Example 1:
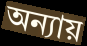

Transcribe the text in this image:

অন্যায়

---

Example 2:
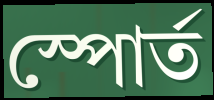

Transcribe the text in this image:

স্পোর্ত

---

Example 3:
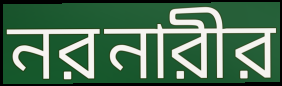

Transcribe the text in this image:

নরনারীর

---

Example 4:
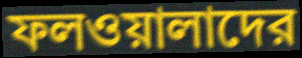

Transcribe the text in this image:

ফলওয়ালাদের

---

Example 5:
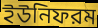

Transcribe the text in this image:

ইউনিফরম